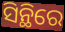
ସିନ୍ଥିରେ